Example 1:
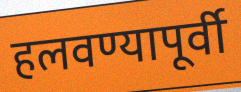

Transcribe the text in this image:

हलवण्यापूर्वी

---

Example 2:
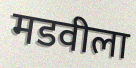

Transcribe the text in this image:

मडवीला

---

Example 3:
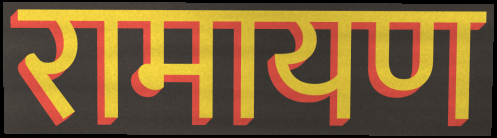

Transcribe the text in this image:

रामायण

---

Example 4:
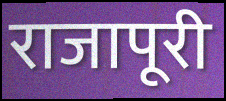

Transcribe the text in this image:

राजापूरी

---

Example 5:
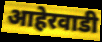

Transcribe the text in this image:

आहेरवाडी